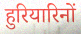
हुरियारिनों